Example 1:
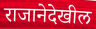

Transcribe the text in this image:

राजानेदेखील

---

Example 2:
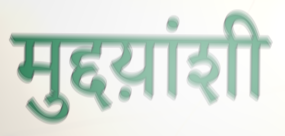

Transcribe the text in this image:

मुद्दय़ांशी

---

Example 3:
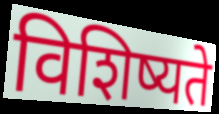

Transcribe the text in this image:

विशिष्यते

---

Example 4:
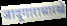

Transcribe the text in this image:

जादूगारासारखे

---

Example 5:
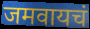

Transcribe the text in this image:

जमवायचं